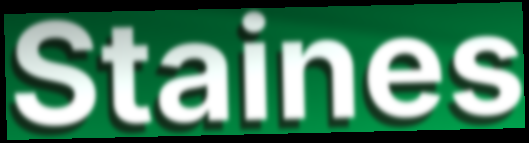
Staines